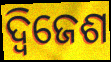
ଦ୍ୱିଜେଶ